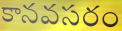
కానవసరం